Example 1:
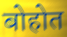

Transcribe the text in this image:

बोहोत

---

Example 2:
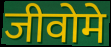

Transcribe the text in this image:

जीवोमे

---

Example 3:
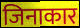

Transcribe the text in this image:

जिनाकार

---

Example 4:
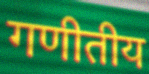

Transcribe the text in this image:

गणीतीय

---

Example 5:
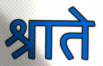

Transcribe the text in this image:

श्राते